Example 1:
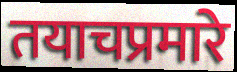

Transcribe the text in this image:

तयाचप्रमारे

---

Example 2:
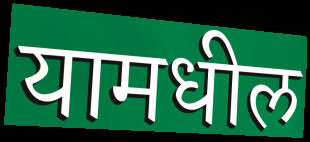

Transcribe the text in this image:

यामधील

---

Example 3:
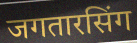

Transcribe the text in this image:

जगतारसिंग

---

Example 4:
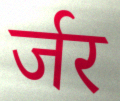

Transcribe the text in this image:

र्जर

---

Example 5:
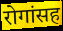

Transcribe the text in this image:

रोगांसह